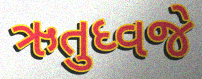
ઋતુધ્વજે